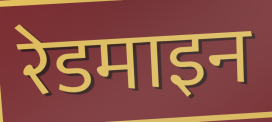
रेडमाइन